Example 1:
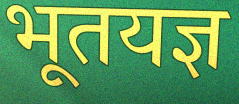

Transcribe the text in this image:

भूतयज्ञ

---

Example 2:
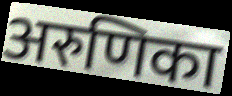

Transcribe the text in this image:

अरुणिका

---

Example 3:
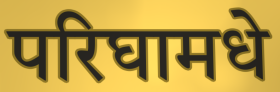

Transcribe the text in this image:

परिघामधे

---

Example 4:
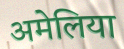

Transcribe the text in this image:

अमेलिया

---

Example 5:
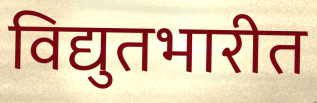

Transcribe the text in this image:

विद्युतभारीत